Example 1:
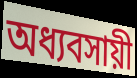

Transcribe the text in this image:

অধ্যবসায়ী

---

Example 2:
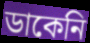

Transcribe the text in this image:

ডাকেনি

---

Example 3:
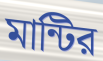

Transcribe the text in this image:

মান্টির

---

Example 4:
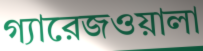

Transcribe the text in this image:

গ্যারেজওয়ালা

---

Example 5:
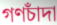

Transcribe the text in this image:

গণচাঁদা